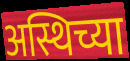
अस्थिच्या